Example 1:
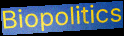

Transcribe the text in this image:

Biopolitics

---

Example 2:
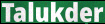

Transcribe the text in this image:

Talukder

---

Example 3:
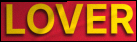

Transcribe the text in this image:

LOVER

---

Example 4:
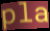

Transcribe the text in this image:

pla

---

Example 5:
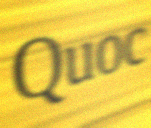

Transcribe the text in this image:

Quoc